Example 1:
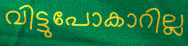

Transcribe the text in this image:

വിട്ടുപോകാറില്ല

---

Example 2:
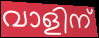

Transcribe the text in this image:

വാളിന്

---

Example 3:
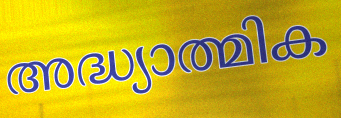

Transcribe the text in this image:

അദ്ധ്യാത്മിക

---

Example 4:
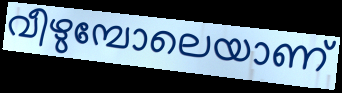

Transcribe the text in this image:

വീഴുമ്പോലെയാണ്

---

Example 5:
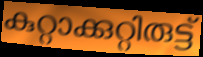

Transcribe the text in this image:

കുറ്റാക്കുറ്റിരുട്ട്